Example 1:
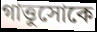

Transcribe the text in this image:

গাত্তুসোকে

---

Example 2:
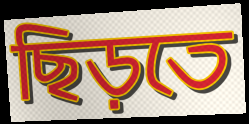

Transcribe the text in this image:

ছিড়তে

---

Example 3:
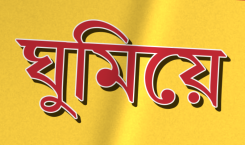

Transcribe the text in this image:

ঘুমিয়ে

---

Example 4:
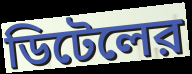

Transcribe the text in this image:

ডিটেলের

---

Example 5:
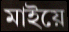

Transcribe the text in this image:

মাইয়ে